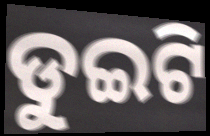
ଡୁଇଟି